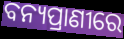
ବନ୍ୟପ୍ରାଣୀରେ